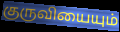
குருவியையும்